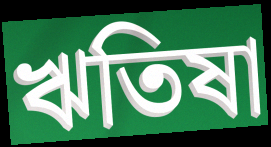
ঋতিষা